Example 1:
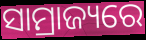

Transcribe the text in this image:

ସାମ୍ରାଜ୍ୟରେ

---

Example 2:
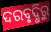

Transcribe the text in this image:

ଦରବୃଦ୍ଧିରୁ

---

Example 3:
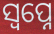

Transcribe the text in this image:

ସ୍ବପ୍ନେ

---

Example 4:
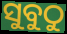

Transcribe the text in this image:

ସୁବୁଠୁ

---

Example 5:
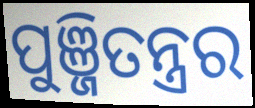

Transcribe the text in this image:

ପୁଞ୍ଜିତନ୍ତ୍ରର